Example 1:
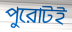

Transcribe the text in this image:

পুরোটই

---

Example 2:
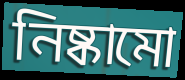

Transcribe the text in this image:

নিষ্কামো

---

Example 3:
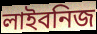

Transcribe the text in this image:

লাইবনিজ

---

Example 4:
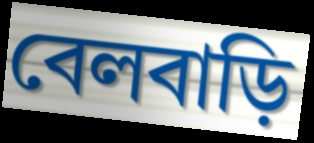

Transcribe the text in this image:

বেলবাড়ি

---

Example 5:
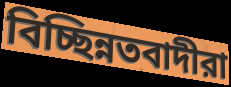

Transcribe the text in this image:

বিচ্ছিন্নতবাদীরা